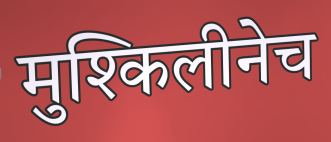
मुश्किलीनेच